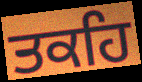
ਤਕਹਿ